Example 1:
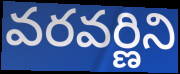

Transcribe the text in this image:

వరవర్ణిని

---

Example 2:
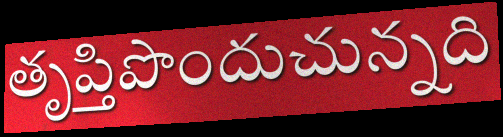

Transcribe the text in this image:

తృప్తిపొందుచున్నది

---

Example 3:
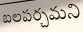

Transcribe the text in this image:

బలపర్చమని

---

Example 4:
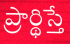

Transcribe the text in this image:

ప్రార్థిస్తే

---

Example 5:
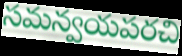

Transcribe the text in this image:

సమన్వయపరచి